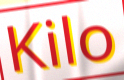
Kilo